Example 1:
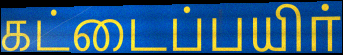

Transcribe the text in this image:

கட்டைப்பயிர்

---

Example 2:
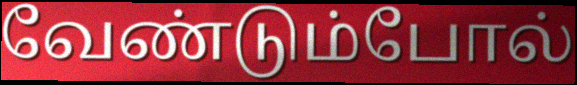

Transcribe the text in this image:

வேண்டும்போல்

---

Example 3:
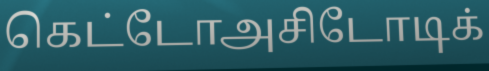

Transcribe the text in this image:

கெட்டோஅசிடோடிக்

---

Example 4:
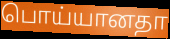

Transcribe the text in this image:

பொய்யானதா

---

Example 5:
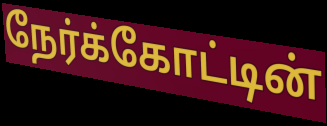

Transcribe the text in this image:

நேர்க்கோட்டின்